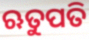
ଋତୁପତି